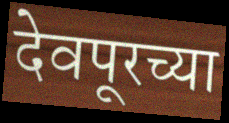
देवपूरच्या